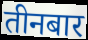
तीनबार